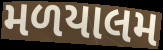
મળયાલમ